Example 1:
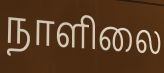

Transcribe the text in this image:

நாளிலை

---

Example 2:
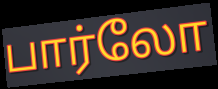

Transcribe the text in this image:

பார்லோ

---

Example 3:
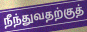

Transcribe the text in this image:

நீந்துவதற்குத்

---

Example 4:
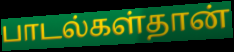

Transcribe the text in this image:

பாடல்கள்தான்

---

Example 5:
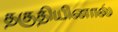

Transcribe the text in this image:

தகுதியினால்